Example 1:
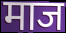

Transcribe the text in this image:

माज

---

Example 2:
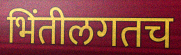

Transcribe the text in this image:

भिंतीलगतच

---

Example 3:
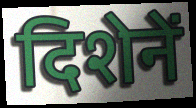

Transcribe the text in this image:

दिशेनें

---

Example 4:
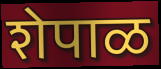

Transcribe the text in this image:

शेपाळ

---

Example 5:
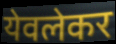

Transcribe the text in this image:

येवलेकर